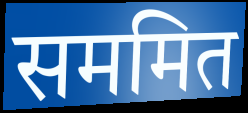
सममित